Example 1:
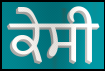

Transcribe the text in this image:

ਕੇਸੀ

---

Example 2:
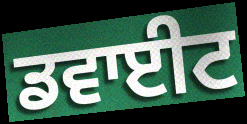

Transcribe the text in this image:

ਡਵਾਈਟ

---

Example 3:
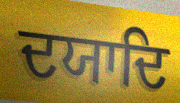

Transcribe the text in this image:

ਦਯਾਦਿ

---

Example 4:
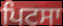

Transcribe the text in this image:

ਪਿਟਸਾ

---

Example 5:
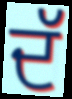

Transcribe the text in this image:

ਦੱ